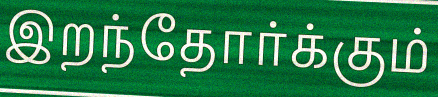
இறந்தோர்க்கும்